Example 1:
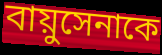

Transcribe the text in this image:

বায়ুসেনাকে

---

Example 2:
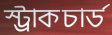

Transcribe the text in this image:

স্ট্রাকচার্ড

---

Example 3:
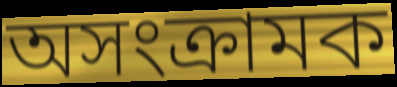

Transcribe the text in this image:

অসংক্রামক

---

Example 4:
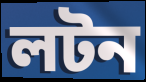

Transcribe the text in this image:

লটন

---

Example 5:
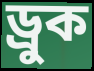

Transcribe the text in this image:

ড্রুক